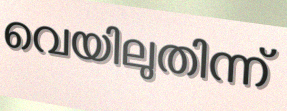
വെയിലുതിന്ന്